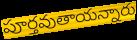
పూర్తవుతాయన్నారు